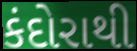
કંદોરાથી